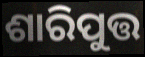
ଶାରିପୁତ୍ତ